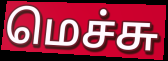
மெச்சு